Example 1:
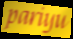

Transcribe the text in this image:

pariyu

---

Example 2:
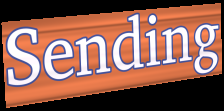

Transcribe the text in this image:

Sending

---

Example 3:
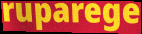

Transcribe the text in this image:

ruparege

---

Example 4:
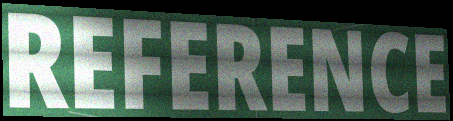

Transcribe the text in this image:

REFERENCE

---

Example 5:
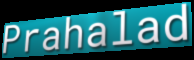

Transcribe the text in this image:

Prahalad